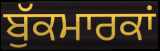
ਬੁੱਕਮਾਰਕਾਂ